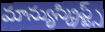
మాన్యుస్క్రిప్ట్స్